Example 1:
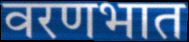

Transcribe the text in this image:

वरणभात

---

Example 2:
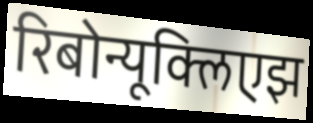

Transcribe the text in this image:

रिबोन्यूक्लिएझ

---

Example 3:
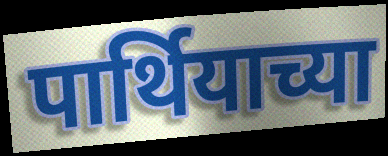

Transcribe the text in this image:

पार्थियाच्या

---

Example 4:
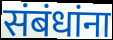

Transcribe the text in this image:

संबंधांना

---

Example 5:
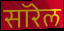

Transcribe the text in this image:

सॉरेल